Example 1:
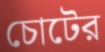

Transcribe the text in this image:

চোটের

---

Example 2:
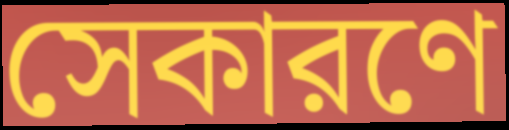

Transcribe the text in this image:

সেকারণে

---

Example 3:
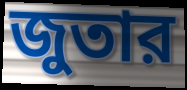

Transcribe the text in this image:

জুতার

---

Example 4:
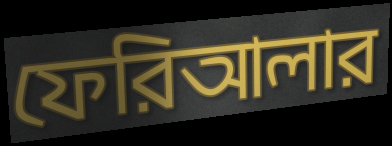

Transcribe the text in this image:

ফেরিআলার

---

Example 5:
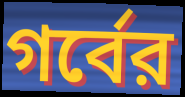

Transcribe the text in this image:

গর্বের